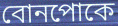
বোনপোকে